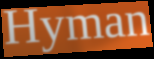
Hyman